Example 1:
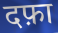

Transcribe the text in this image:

दफ़ा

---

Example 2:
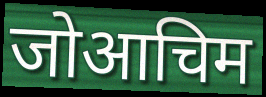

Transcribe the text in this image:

जोआचिम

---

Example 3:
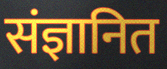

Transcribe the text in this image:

संज्ञानित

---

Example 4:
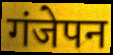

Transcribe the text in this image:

गंजेपन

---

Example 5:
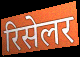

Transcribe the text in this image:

रिसेलर